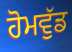
ਹੋਮਵੁੱਡ